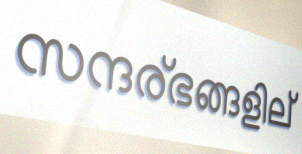
സന്ദര്ഭങ്ങളില്